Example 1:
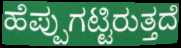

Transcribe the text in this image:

ಹೆಪ್ಪುಗಟ್ಟಿರುತ್ತದೆ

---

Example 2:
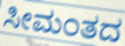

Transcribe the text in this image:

ಸೀಮಂತದ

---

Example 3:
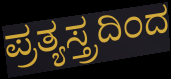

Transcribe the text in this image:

ಪ್ರತ್ಯಸ್ತ್ರದಿಂದ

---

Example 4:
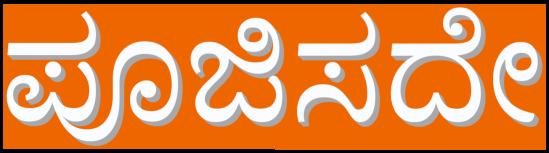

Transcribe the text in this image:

ಪೂಜಿಸದೇ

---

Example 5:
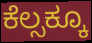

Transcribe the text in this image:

ಕೆಲ್ಸಕ್ಕೂ